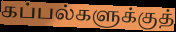
கப்பல்களுக்குத்